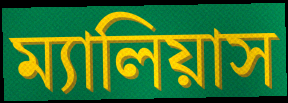
ম্যালিয়াস